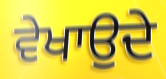
ਵੇਖਾਉਦੇ